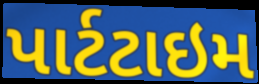
પાર્ટટાઇમ